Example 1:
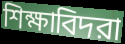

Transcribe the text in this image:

শিক্ষাবিদরা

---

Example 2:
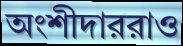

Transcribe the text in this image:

অংশীদাররাও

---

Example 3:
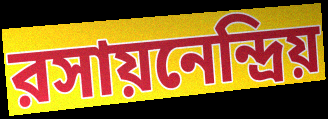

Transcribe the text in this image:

রসায়নেন্দ্রিয়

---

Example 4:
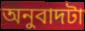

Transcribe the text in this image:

অনুবাদটা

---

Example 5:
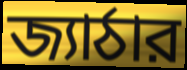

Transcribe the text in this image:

জ্যাঠার